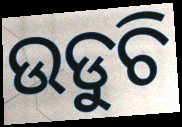
ଉଡୁଚି